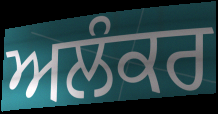
ਅਲੰਕਰ